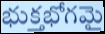
భుక్తభోగమై